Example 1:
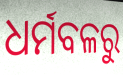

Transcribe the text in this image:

ଧର୍ମବଳରୁ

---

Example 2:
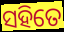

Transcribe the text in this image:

ସହିତେ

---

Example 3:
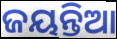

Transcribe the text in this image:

ଜୟନ୍ତିଆ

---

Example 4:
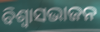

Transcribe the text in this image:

ବିଶ୍ୱାସଭାଜନ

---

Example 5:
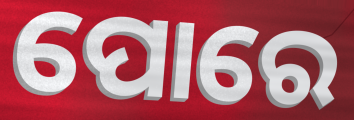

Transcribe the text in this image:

ପୋରେ